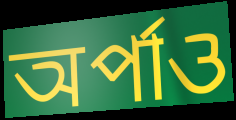
অর্পাও